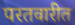
परतवारीत